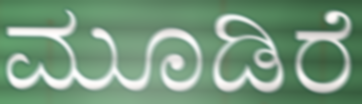
ಮೂಡಿರೆ